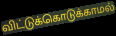
விட்டுக்கொடுக்காமல்